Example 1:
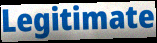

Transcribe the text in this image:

Legitimate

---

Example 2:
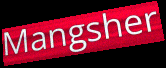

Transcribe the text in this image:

Mangsher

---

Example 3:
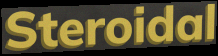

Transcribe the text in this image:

Steroidal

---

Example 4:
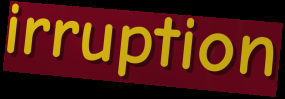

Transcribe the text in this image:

irruption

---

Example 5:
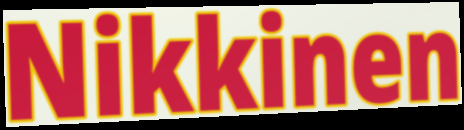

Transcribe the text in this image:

Nikkinen